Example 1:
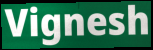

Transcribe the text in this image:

Vignesh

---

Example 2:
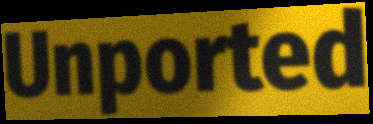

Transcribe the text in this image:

Unported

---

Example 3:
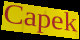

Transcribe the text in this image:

Capek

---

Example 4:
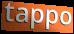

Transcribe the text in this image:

tappo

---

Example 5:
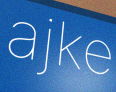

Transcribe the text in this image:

ajke